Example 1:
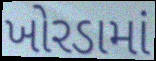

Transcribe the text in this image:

ખોરડામાં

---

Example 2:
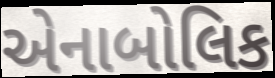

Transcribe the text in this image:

એનાબોલિક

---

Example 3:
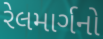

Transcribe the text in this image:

રેલમાર્ગનો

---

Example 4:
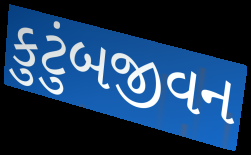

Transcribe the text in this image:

કુટુંબજીવન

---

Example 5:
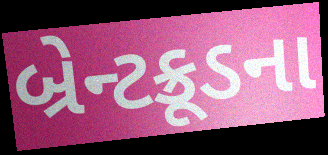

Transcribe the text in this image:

બ્રેન્ટક્રૂડના